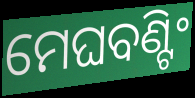
ମେଘବଣ୍ଟିଂ